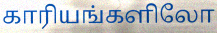
காரியங்களிலோ